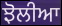
ਝੋਲੀਆ